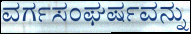
ವರ್ಗಸಂಘರ್ಷವನ್ನು